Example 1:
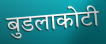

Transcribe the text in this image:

बुडलाकोटी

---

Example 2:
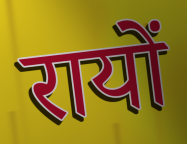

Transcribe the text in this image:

रायों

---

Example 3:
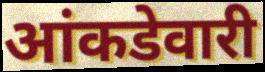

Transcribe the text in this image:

आंकडेवारी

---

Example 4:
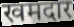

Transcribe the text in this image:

खमदार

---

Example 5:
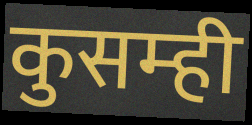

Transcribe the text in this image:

कुसम्ही